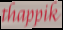
thappik